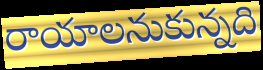
రాయాలనుకున్నది